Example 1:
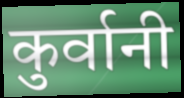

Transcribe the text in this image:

कुर्वानी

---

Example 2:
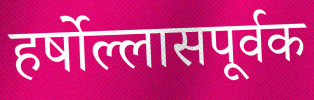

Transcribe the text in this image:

हर्षोल्लासपूर्वक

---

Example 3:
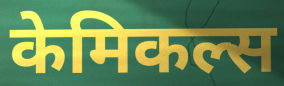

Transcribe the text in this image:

केमिकल्स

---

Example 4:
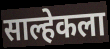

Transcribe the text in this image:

साल्हेकला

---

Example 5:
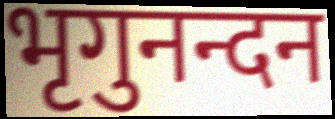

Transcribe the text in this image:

भृगुनन्दन